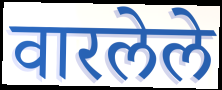
वारलेले